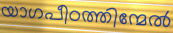
യാഗപീഠത്തിന്മേൽ